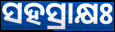
ସହସ୍ରାକ୍ଷଃ